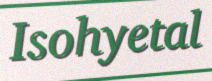
Isohyetal